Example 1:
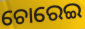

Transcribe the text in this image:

ଚୋରେଇ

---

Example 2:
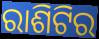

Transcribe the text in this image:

ରାଶିଟିର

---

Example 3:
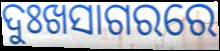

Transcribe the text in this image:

ଦୁଃଖସାଗରରେ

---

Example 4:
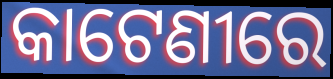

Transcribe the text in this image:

କାଟେଣୀରେ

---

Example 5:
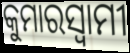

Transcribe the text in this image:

କୁମାରସ୍ୱାମୀ